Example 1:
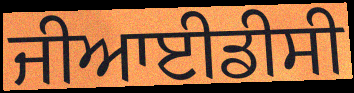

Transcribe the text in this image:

ਜੀਆਈਡੀਸੀ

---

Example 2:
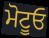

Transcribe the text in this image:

ਮੋਟੂਓ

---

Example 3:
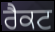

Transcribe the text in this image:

ਰੈਕਟ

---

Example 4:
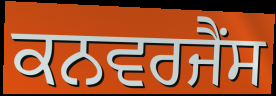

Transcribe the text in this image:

ਕਨਵਰਜੈਂਸ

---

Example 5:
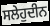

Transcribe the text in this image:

ਸਲੇਹੁਦੀਨ